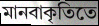
মানবাকৃতিতে